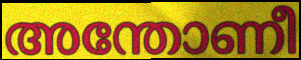
അന്തോണീ